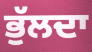
ਭੁੱਲਦਾ